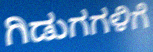
ಗಿಡುಗಗಳಿಗೆ